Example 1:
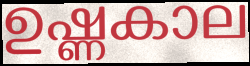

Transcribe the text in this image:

ഉഷ്ണകാല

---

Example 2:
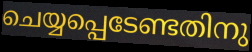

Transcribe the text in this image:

ചെയ്യപ്പെടേണ്ടതിനു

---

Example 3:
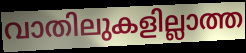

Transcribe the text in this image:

വാതിലുകളില്ലാത്ത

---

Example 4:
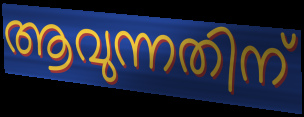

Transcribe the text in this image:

ആവുന്നതിന്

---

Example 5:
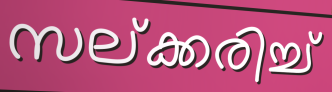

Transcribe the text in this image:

സല്ക്കരിച്ച്